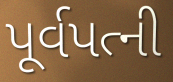
પૂર્વપત્ની